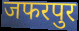
जफरपुर